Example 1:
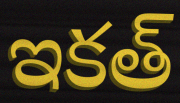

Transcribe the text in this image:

ఇకత్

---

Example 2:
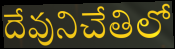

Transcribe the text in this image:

దేవునిచేతిలో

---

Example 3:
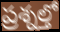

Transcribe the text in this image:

ప్రశ్నల్తో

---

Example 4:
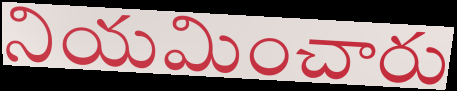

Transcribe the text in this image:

నియమించారు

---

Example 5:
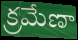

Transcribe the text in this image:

క్రమేణా